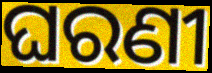
ଘରଣୀ